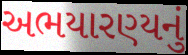
અભયારણ્યનું